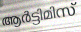
ആർട്ടിമിസ്